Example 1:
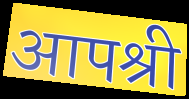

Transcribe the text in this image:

आपश्री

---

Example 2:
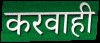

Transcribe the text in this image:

करवाही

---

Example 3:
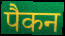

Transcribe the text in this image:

पैकन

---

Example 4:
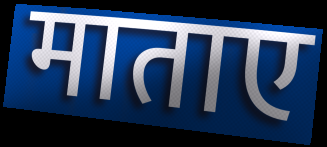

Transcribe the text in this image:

माताए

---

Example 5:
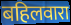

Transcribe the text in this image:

बहिलवारा